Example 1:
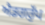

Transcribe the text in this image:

ਐਡਗਰੁੱਪ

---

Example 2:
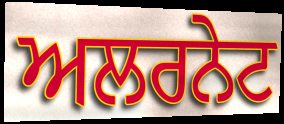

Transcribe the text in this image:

ਅਲਰਨੇਟ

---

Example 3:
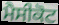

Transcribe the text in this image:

ਮੈਸੀਕੋਟ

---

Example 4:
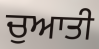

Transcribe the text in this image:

ਚੁਆਤੀ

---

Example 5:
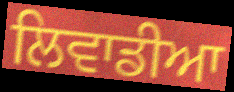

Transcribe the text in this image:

ਲਿਵਾਡੀਆ